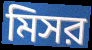
মিসর